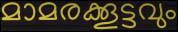
മാമരക്കൂട്ടവും